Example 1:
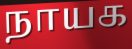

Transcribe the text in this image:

நாயக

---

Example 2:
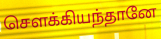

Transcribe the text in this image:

சௌக்கியந்தானே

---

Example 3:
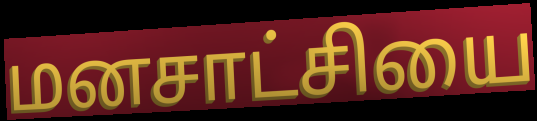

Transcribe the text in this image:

மனசாட்சியை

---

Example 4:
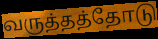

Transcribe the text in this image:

வருத்தத்தோடு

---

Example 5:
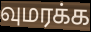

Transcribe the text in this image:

வுமரக்க